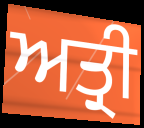
ਅਤ੍ਰੀ